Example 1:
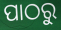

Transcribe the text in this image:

ପାଠରୁ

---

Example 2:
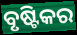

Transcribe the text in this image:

ବୃଷ୍ଟିକର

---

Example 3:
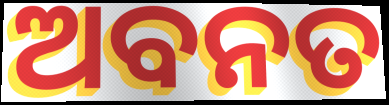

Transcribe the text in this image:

ଅବନତ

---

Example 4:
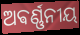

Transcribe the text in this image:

ଅଵର୍ଣ୍ଣନୀୟ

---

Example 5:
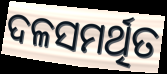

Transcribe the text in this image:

ଦଳସମର୍ଥିତ